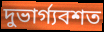
দুভার্গ্যবশত